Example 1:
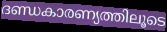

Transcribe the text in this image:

ദണ്ഡകാരണ്യത്തിലൂടെ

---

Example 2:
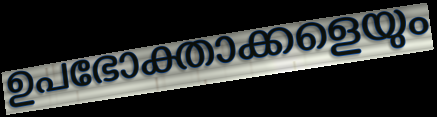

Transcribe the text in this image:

ഉപഭോക്താക്കളെയും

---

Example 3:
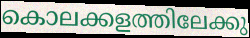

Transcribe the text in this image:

കൊലക്കളത്തിലേക്കു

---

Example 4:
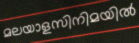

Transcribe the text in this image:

മലയാളസിനിമയിൽ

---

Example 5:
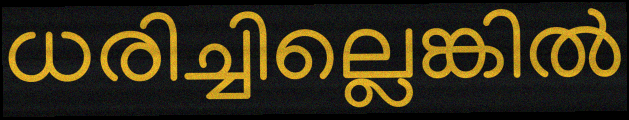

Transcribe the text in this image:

ധരിച്ചില്ലെങ്കിൽ